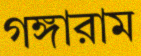
গঙ্গারাম